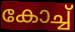
കോച്ച്